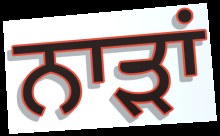
ਨਾੜਾਂ